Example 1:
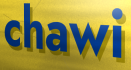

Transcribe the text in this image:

chawi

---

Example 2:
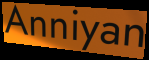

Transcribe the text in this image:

Anniyan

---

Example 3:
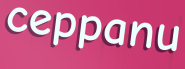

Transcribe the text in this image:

ceppanu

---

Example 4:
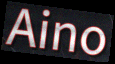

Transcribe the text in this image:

Aino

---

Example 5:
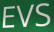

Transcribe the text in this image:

EVS